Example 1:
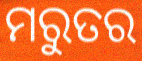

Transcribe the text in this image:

ମରୁତର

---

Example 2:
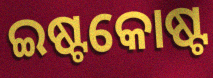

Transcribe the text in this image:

ଇଷ୍ଟକୋଷ୍ଟ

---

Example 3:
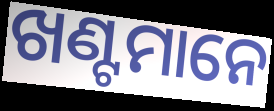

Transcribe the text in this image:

ଖଣ୍ଟମାନେ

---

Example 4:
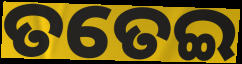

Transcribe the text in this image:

ତତେଇ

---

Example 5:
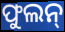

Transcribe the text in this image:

ଫୁଲନ୍